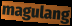
magulang